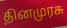
தினமுரசு